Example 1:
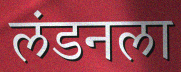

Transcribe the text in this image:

लंडनला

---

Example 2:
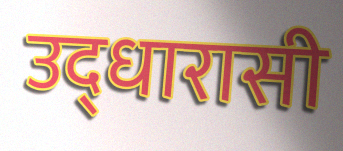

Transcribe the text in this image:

उद्धारासी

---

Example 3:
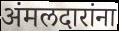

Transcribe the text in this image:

अंमलदारांना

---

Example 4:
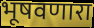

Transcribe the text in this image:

भूषवणारा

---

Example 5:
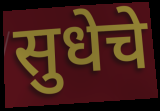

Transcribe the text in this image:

सुधेचे